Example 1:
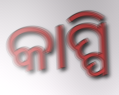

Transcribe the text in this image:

କାପ୍ପି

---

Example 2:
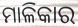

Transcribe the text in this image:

ମାଳିକାର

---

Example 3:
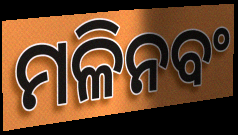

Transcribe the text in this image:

ମଳିନବଂ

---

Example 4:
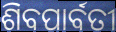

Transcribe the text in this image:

ଶିବପାର୍ବତୀ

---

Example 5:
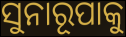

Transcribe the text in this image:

ସୁନାରୂପାକୁ